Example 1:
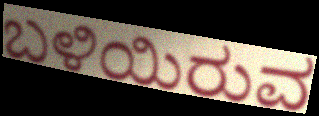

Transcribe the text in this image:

ಬಳಿಯಿರುವ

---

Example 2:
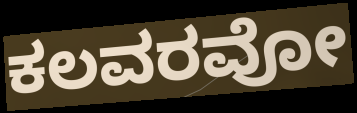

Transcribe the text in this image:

ಕಲವರವೋ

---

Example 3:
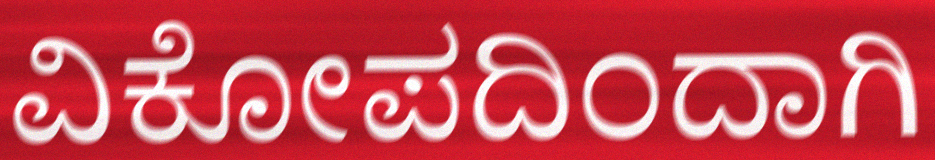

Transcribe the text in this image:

ವಿಕೋಪದಿಂದಾಗಿ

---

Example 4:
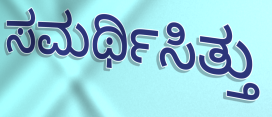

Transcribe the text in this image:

ಸಮರ್ಥಿಸಿತ್ತು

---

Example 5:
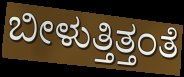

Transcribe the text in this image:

ಬೀಳುತ್ತಿತ್ತಂತೆ